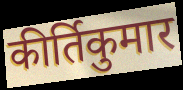
कीर्तिकुमार